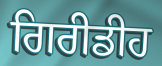
ਗਿਰੀਡੀਹ